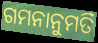
ଗମନାନୁମତି